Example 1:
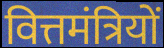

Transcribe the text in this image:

वित्तमंत्रियों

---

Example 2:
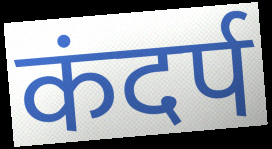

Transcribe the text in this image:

कंदर्प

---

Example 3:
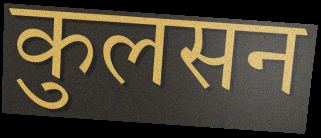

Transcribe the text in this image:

कुलसन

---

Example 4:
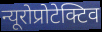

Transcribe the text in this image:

न्यूरोप्रोटेक्टिव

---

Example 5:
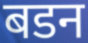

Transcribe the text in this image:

बडन